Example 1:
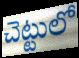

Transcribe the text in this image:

చెట్టులో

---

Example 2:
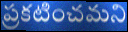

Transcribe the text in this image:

ప్రకటించమని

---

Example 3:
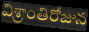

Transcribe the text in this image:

విశ్రాంతిరోజున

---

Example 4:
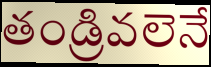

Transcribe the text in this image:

తండ్రివలెనే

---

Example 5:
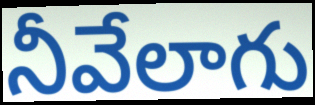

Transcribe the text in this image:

నీవేలాగు